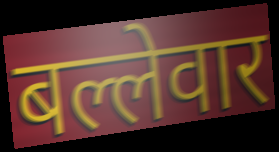
बल्लेवार